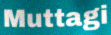
Muttagi